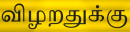
விழறதுக்கு